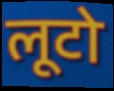
लूटो